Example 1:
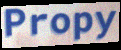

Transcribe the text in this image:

Propy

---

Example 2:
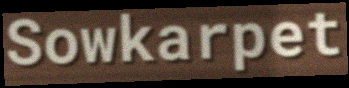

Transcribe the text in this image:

Sowkarpet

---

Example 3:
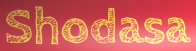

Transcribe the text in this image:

Shodasa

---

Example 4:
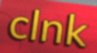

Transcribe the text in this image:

clnk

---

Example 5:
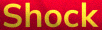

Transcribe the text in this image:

Shock